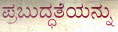
ಪ್ರಬುದ್ಧತೆಯನ್ನು